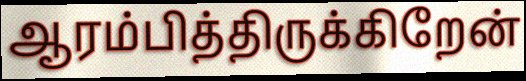
ஆரம்பித்திருக்கிறேன்